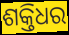
ଶକ୍ତିଧର